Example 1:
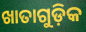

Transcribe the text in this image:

ଖାତାଗୁଡ଼ିକ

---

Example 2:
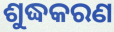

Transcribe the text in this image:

ଶୁଦ୍ଧକରଣ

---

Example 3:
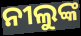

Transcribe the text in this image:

ନୀଲୁଙ୍କ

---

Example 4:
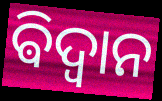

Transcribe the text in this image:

ଵିଦ୍ଵାନ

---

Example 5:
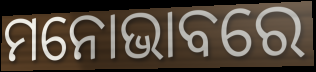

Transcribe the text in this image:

ମନୋଭାବରେ